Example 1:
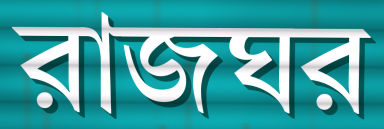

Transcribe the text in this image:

রাজঘর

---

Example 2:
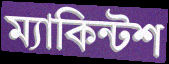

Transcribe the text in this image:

ম্যাকিন্টশ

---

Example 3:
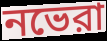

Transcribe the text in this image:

নভেরা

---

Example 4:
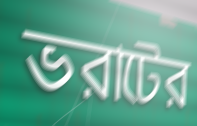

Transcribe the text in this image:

ভরাটের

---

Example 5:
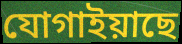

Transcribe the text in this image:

যোগাইয়াছে